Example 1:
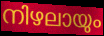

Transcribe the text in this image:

നിഴലായും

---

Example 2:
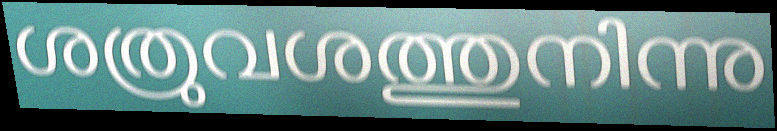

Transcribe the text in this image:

ശത്രുവശത്തുനിന്നു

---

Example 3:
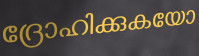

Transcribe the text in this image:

ദ്രോഹിക്കുകയോ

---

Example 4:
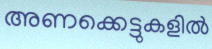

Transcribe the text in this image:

അണക്കെട്ടുകളിൽ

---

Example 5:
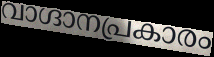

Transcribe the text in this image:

വാഗ്ദാനപ്രകാരം